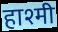
हाश्मी